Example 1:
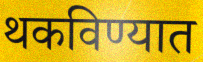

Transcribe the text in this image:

थकविण्यात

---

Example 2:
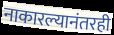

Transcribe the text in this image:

नाकारल्यानंतरही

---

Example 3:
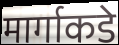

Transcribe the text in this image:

मार्गाकडे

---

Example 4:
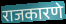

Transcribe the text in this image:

राजकारणे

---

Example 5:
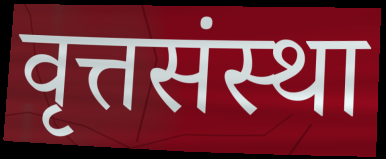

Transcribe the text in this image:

वृत्तसंस्था